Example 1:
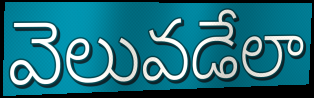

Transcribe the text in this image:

వెలువడేలా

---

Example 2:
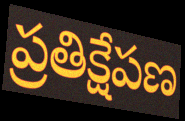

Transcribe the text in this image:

ప్రతిక్షేపణ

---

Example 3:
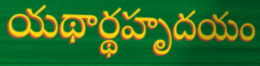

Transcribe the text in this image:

యథార్థహృదయం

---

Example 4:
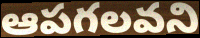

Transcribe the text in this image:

ఆపగలవని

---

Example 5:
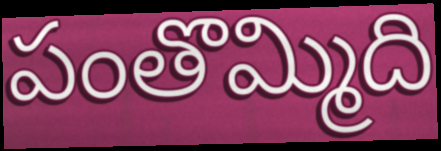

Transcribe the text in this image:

పంతొమ్మిది